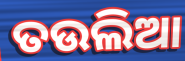
ତଉଲିଆ